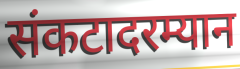
संकटादरम्यान